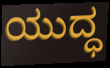
ಯುದ್ಧ